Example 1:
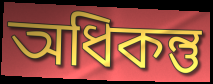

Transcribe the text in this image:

অধিকন্তু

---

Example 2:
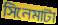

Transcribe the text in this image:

সিনেমাটা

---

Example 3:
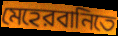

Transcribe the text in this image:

মেহেরবানিতে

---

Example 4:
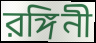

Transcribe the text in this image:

রঙ্গিনী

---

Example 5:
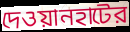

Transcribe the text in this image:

দেওয়ানহাটের